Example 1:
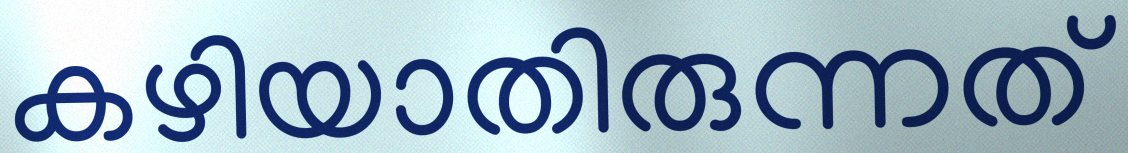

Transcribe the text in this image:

കഴിയാതിരുന്നത്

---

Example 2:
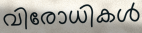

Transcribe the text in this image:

വിരോധികൾ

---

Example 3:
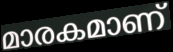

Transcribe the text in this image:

മാരകമാണ്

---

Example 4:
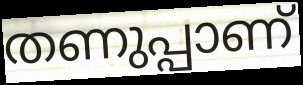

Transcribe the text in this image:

തണുപ്പാണ്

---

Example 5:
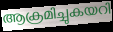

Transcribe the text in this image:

ആക്രമിച്ചുകയറി